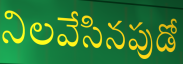
నిలవేసినపుడో